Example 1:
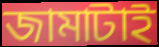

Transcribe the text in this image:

জামাটাই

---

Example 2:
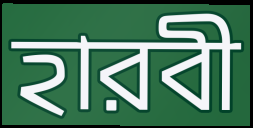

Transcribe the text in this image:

হারবী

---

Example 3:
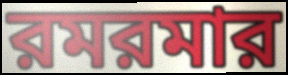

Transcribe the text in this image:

রমরমার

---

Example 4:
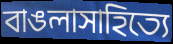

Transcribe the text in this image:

বাঙলাসাহিত্যে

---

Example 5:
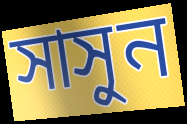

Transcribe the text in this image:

সাসুন